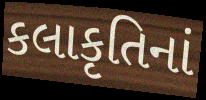
કલાકૃતિનાં